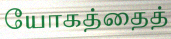
யோகத்தைத்